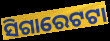
ସିଗାରେଟଟା